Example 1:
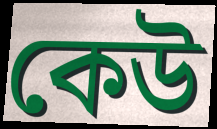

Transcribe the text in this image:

কেউ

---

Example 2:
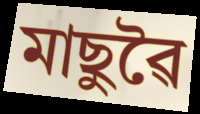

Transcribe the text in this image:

মাছুৱৈ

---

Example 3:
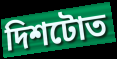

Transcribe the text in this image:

দিশটোত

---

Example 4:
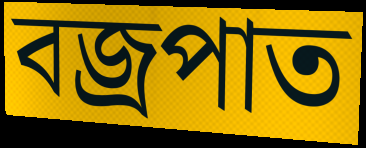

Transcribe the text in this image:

বজ্ৰপাত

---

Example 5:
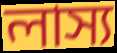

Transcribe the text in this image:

লাস্য